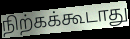
நிற்கக்கூடாது